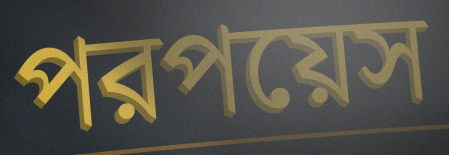
পরপয়েস